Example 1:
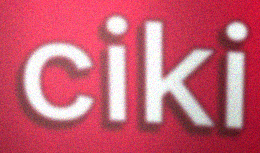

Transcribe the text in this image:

ciki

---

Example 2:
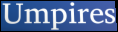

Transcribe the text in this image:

Umpires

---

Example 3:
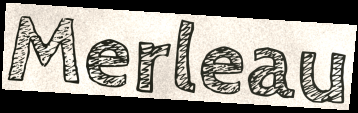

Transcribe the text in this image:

Merleau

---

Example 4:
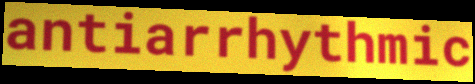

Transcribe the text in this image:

antiarrhythmic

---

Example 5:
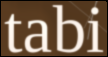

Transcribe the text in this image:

tabi